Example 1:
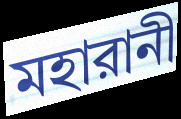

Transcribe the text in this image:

মহারানী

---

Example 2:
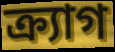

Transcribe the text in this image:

ক্র্যাগ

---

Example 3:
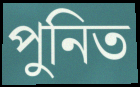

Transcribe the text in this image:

পুনিত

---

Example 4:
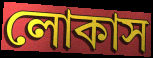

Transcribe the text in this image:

লোকাস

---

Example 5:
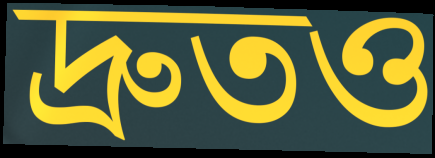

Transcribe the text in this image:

দ্রুতও